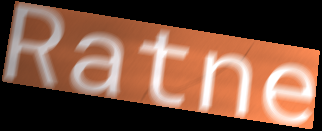
Ratne